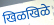
खिळखिळे